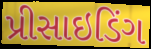
પ્રીસાઇડિંગ